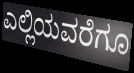
ಎಲ್ಲಿಯವರೆಗೂ